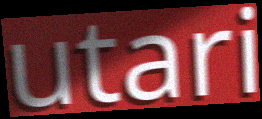
utari